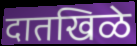
दातखिळे